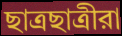
ছাত্রছাত্রীরা